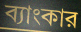
ব্যাংকার